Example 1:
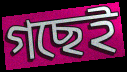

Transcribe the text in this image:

গছেই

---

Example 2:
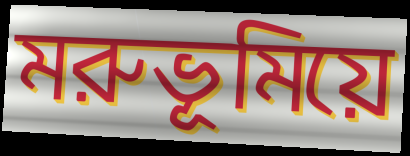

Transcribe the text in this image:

মৰুভূমিয়ে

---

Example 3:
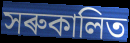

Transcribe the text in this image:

সৰুকালিত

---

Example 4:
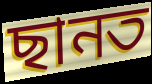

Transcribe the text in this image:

ছানত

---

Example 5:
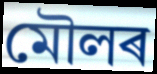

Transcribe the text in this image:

মৌলৰ